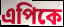
এপিকে